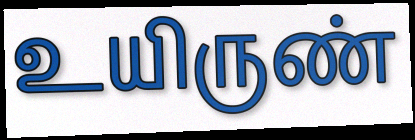
உயிருண்